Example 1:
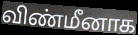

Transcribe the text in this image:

விண்மீனாக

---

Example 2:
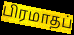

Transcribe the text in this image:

பிரமாதப்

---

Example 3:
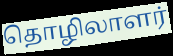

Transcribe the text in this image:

தொழிலாளர்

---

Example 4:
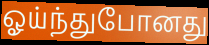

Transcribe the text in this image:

ஓய்ந்துபோனது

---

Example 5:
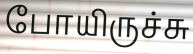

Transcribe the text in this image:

போயிருச்சு